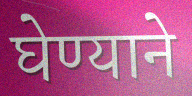
घेण्याने